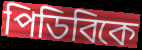
পিডিবিকে